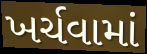
ખર્ચવામાં